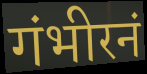
गंभीरनं